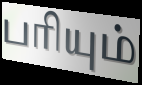
பரியும்